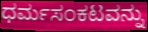
ಧರ್ಮಸಂಕಟವನ್ನು